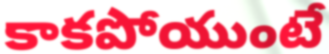
కాకపోయుంటే